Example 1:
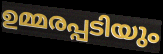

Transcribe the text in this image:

ഉമ്മരപ്പടിയും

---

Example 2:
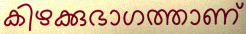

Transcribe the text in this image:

കിഴക്കുഭാഗത്താണ്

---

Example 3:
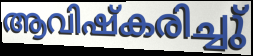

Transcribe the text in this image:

ആവിഷ്കരിച്ചു്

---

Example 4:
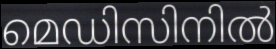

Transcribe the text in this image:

മെഡിസിനിൽ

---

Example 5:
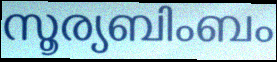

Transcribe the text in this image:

സൂര്യബിംബം